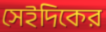
সেইদিকের